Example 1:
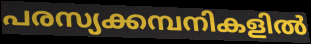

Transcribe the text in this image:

പരസ്യക്കമ്പനികളിൽ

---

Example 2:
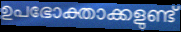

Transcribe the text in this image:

ഉപഭോക്താക്കളുണ്ട്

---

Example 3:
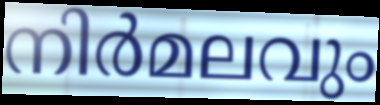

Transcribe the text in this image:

നിർമലവും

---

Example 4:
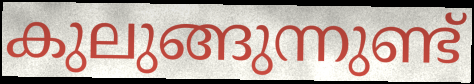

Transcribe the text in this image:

കുലുങ്ങുന്നുണ്ട്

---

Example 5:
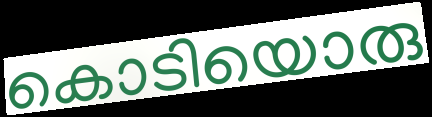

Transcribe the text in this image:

കൊടിയൊരു